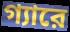
গ্যারে